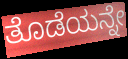
ತೊಡೆಯನ್ನೇ